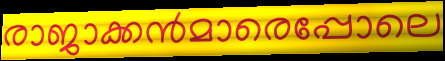
രാജാക്കൻമാരെപ്പോലെ